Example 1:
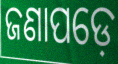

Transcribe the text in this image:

ଜଣାପଡ଼େ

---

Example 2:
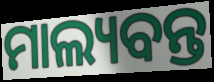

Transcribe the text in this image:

ମାଲ୍ୟବନ୍ତ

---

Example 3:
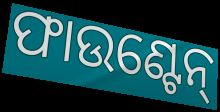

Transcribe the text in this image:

ଫାଉଣ୍ଟେନ୍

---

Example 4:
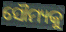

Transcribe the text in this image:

ସୌମ୍ୟକୁ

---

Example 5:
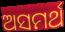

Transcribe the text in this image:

ଅସମର୍ଥ